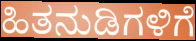
ಹಿತನುಡಿಗಳಿಗೆ